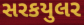
સરકયુલર